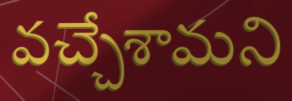
వచ్చేశామని